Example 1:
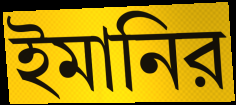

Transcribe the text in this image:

ইমানির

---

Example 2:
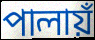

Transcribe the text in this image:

পালায়ঁ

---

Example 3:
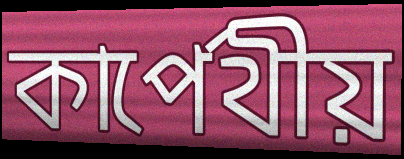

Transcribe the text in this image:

কার্পেথীয়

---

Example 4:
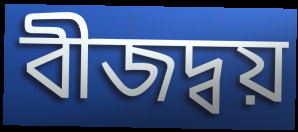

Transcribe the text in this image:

বীজদ্বয়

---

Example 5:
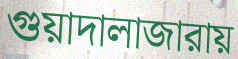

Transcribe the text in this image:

গুয়াদালাজারায়